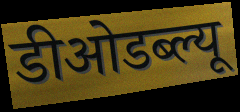
डीओडब्ल्यू